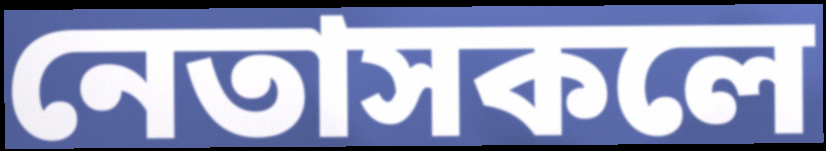
নেতাসকলে